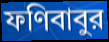
ফণিবাবুর